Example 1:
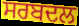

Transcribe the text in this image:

ਸਰਬਦਲ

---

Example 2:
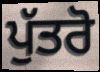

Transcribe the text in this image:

ਪੁੱਤਰੋ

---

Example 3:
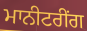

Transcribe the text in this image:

ਮਾਨੀਟਰੀਂਗ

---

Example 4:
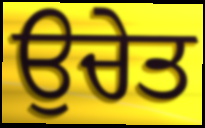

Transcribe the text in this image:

ਉਚੇਤ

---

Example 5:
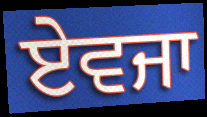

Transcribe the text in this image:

ਏਵਜਾ